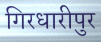
गिरधारीपुर